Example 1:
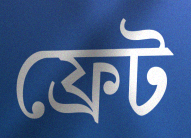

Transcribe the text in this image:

ফ্রেট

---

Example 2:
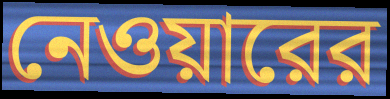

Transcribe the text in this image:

নেওয়ারের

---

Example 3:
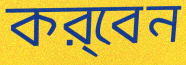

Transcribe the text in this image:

কর্‌বেন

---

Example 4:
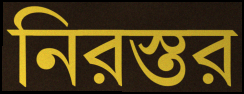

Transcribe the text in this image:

নিরস্তর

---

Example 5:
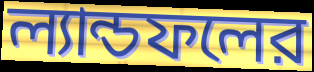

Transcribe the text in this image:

ল্যান্ডফলের